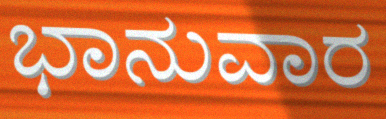
ಭಾನುವಾರ